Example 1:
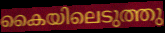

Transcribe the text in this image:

കൈയിലെടുത്തു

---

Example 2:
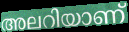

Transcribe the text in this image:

അലറിയാണ്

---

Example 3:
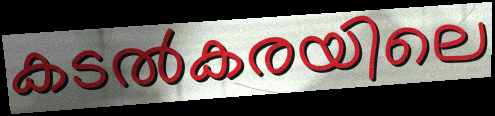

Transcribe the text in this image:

കടൽകരയിലെ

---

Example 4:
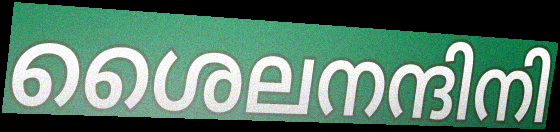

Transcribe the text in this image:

ശൈലനന്ദിനി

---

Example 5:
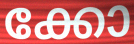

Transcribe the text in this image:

ക്കോ